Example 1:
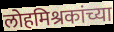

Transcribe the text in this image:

लोहमिश्रकांच्या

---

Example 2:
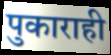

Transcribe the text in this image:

पुकाराही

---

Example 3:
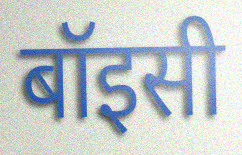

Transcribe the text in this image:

बॉइसी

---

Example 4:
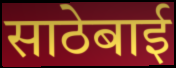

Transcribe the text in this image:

साठेबाई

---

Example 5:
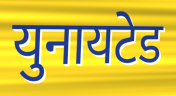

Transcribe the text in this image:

युनायटेड